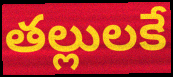
తల్లులకే